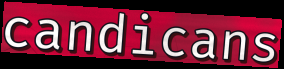
candicans